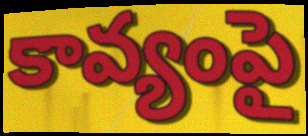
కావ్యంపై